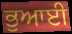
ਭੁਆਈ